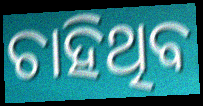
ଚାହିଥିବ